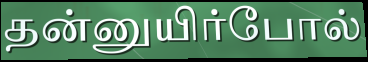
தன்னுயிர்போல்